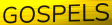
GOSPELS